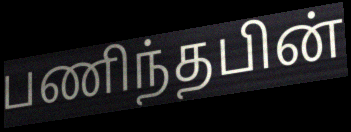
பணிந்தபின்